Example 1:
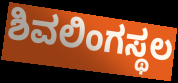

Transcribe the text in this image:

ಶಿವಲಿಂಗಸ್ಥಲ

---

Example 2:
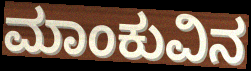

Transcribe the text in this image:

ಮಾಂಕುವಿನ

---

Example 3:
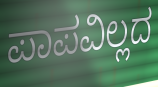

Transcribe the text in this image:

ಪಾಪವಿಲ್ಲದ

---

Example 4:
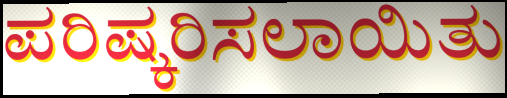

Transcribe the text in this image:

ಪರಿಷ್ಕರಿಸಲಾಯಿತು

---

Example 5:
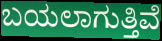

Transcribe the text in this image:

ಬಯಲಾಗುತ್ತಿವೆ